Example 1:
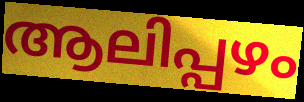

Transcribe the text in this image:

ആലിപ്പഴം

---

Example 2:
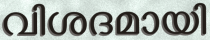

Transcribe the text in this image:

വിശദമായി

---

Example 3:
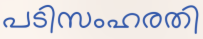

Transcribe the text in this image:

പടിസംഹരതി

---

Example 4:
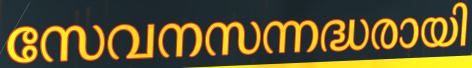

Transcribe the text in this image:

സേവനസന്നദ്ധരായി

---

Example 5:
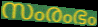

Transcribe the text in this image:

സംരംഭം